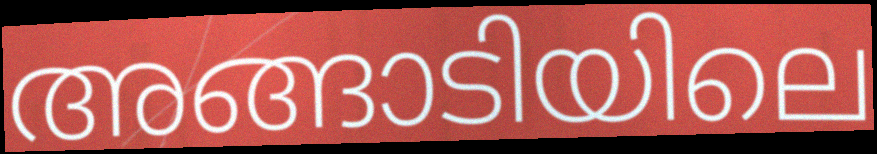
അങ്ങാടിയിലെ